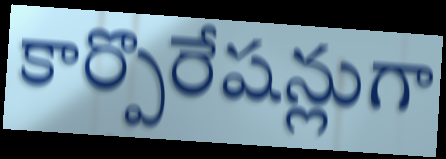
కార్పొరేషన్లుగా